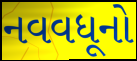
નવવધૂનો